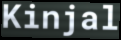
Kinjal